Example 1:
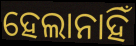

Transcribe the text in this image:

ହେଲାନାହିଁ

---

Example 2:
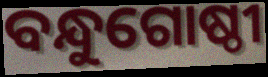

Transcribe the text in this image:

ବନ୍ଧୁଗୋଷ୍ଠୀ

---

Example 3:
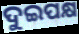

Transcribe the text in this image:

ଦୁଇପକ୍ଷ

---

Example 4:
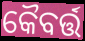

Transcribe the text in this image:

କୈବର୍ତ୍ତ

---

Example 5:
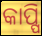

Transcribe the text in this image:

କାପ୍ପି